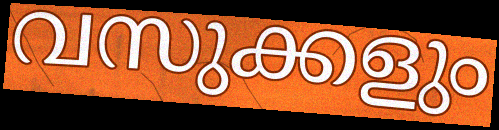
വസുക്കളും